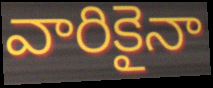
వారికైనా